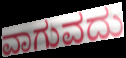
ವಾಗುವದು